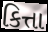
કિત્તા